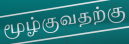
மூழ்குவதற்கு